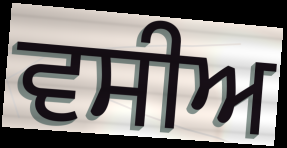
ਵਸੀਅ